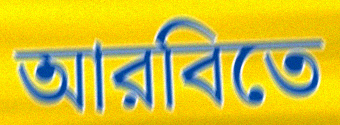
আরবিতে